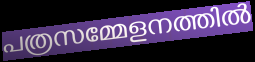
പത്രസമ്മേളനത്തിൽ